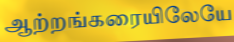
ஆற்றங்கரையிலேயே